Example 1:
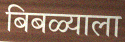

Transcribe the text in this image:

बिबळ्याला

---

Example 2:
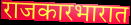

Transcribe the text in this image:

राजकारभारात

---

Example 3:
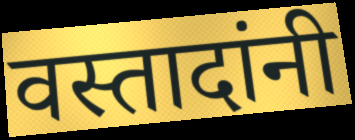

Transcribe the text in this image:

वस्तादांनी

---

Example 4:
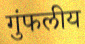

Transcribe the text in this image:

गुंफलीय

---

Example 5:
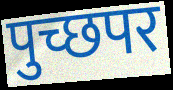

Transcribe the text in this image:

पुच्छपर